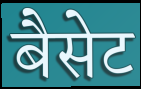
बैसेट